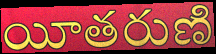
యీతరుణి